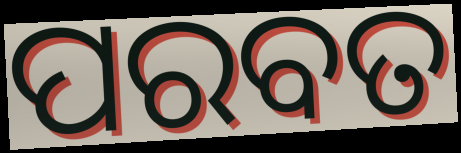
ପରବତ